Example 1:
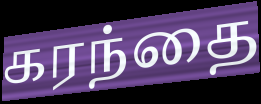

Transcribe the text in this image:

கரந்தை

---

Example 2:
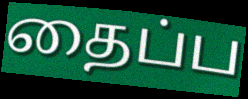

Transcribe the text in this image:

தைப்ப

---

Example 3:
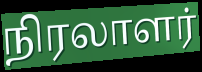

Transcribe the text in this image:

நிரலாளர்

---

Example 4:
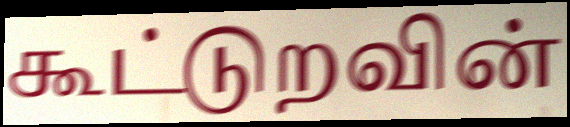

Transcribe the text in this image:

கூட்டுறவின்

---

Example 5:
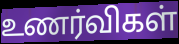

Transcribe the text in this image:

உணர்விகள்